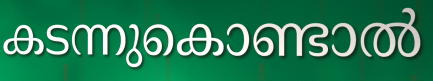
കടന്നുകൊണ്ടാൽ